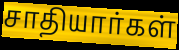
சாதியார்கள்